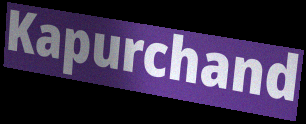
Kapurchand